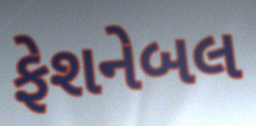
ફેશનેબલ